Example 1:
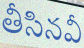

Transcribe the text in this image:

తీసినవీ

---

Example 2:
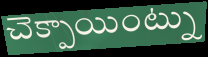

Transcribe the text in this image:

చెక్పాయింట్ను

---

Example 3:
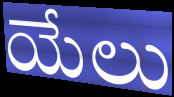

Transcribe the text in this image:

యేలు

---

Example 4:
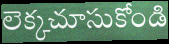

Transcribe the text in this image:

లెక్కచూసుకోండి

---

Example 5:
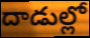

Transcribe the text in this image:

దాడుల్లో